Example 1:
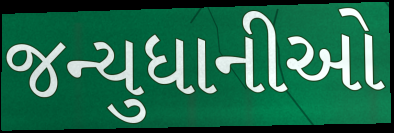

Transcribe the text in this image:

જન્યુધાનીઓ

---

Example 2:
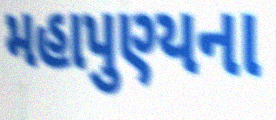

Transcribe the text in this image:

મહાપુણ્યના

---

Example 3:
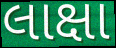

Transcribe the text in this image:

લાક્ષા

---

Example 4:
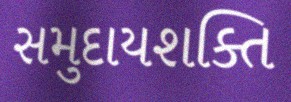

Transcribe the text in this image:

સમુદાયશક્તિ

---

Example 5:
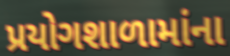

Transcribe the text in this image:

પ્રયોગશાળામાંના